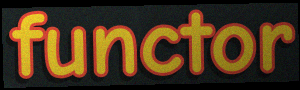
functor